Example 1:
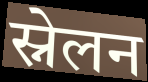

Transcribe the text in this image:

स्नेलन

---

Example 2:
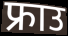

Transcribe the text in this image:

फ्राउ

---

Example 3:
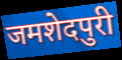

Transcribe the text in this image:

जमशेदपुरी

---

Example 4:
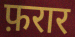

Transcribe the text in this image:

फ़रार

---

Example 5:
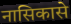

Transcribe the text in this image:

नासिकासे